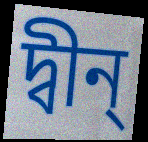
দ্বীন্